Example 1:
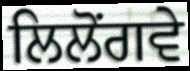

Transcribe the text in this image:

ਲਿਲੋਂਗਵੇ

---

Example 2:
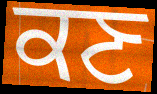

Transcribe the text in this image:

ਕਣ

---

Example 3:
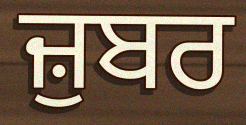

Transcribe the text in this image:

ਜ਼ੁਬਰ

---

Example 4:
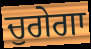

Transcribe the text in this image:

ਚੁਗੇਗਾ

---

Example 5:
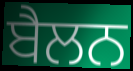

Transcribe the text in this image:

ਬੈਲਨ